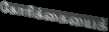
கோரிக்கையைக்